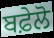
ਬਫ਼ੇਲੋ